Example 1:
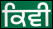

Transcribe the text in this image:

ਕਿਵੀ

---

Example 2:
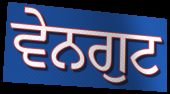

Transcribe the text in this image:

ਵੇਨਗੁਟ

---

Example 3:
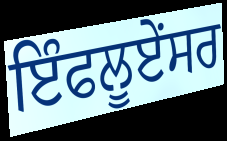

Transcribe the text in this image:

ਇੰਫਲੂਏਂਸਰ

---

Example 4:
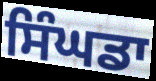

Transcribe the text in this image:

ਸਿੰਘਡਾ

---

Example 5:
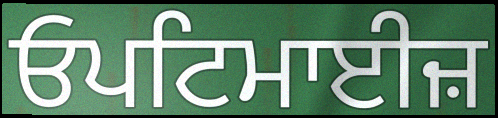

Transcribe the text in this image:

ਓਪਟਿਮਾਈਜ਼